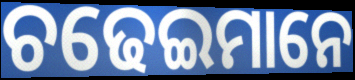
ଚଢେଇମାନେ